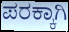
ಪರಕ್ಕಾಗಿ